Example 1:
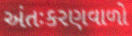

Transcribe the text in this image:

અંતઃકરણવાળો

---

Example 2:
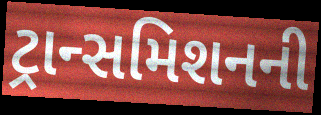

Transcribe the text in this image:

ટ્રાન્સમિશનની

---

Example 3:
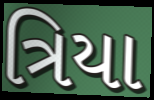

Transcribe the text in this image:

ત્રિયા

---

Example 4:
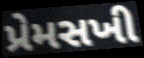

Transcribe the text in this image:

પ્રેમસખી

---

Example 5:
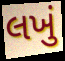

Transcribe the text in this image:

લખું